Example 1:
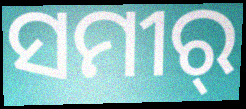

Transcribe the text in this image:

ସମୀର୍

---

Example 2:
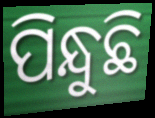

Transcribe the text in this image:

ପିନ୍ଧୁଛି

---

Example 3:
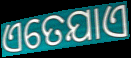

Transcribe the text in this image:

ଏତେଯାଏ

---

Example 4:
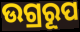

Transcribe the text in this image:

ଉଗ୍ରରୂପ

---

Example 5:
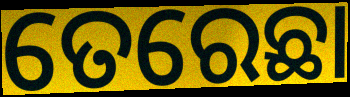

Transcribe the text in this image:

ତେରେଛା